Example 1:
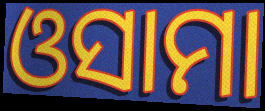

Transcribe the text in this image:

ଓସାମା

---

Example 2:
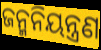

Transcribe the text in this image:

ଜନ୍ମନିୟନ୍ତ୍ରଣ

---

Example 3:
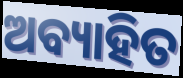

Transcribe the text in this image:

ଅବ୍ୟାହିତ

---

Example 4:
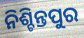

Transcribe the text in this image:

ନିଶ୍ଚିନ୍ତପୁର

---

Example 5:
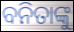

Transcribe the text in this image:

ବନିତାଙ୍କୁ